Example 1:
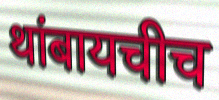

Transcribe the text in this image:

थांबायचीच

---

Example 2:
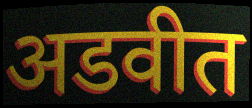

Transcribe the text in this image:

अडवीत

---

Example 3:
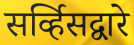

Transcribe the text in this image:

सर्व्हिसद्वारे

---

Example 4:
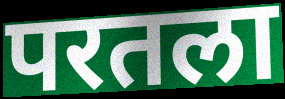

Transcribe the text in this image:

परतला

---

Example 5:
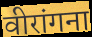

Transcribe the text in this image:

वीरांगना